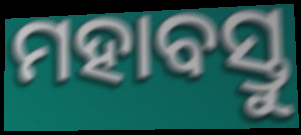
ମହାବସ୍ତୁ